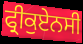
ਫ੍ਰੀਕੁਏਨਸੀ